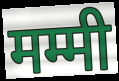
मम्मी